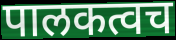
पालकत्वच